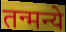
तन्मन्ये